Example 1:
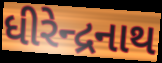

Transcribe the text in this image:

ધીરેન્દ્રનાથ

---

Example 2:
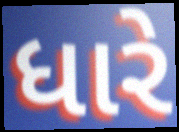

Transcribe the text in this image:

ધારે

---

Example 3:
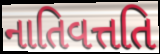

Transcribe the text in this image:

નાતિવત્તતિ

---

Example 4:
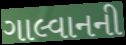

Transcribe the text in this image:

ગાલ્વાનની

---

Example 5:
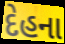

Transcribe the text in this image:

દેહના